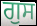
ਗੁਸ